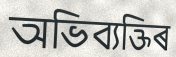
অভিব্যক্তিৰ